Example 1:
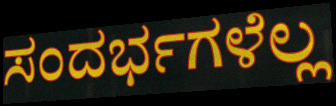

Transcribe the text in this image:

ಸಂದರ್ಭಗಳೆಲ್ಲ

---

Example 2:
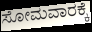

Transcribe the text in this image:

ಸೋಮವಾರಕ್ಕೆ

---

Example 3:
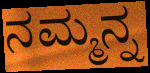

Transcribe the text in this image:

ನಮ್ಮನ್ನ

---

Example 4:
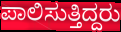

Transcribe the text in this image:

ಪಾಲಿಸುತ್ತಿದ್ದರು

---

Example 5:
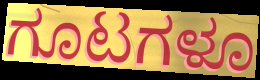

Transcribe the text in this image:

ಗೂಟಗಳೂ